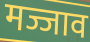
मज्जाव